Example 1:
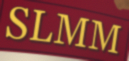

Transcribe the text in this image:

SLMM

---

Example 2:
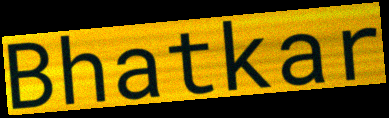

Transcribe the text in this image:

Bhatkar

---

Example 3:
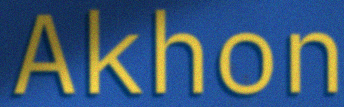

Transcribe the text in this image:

Akhon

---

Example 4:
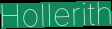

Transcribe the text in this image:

Hollerith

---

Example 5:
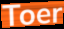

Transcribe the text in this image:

Toer